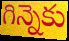
గిన్నెకు